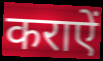
कराऐं